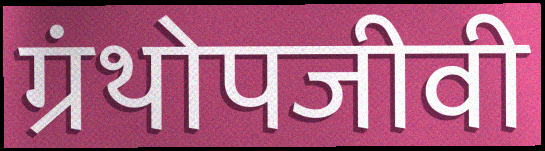
ग्रंथोपजीवी